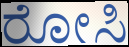
ರೋಸಿ